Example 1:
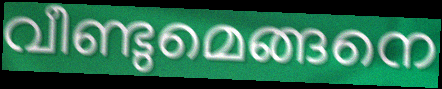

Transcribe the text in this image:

വീണ്ടുമെങ്ങനെ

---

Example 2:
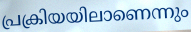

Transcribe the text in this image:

പ്രക്രിയയിലാണെന്നും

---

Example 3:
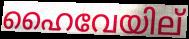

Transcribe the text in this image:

ഹൈവേയില്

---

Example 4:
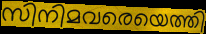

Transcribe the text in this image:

സിനിമവരെയെത്തി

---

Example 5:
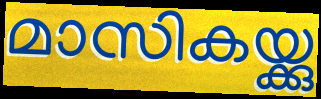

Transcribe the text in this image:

മാസികയ്ക്കു